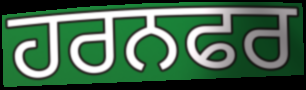
ਹਰਨਫਰ